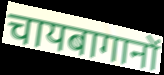
चायबागानों